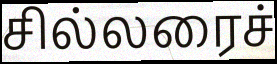
சில்லரைச்